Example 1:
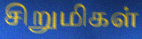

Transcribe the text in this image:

சிறுமிகள்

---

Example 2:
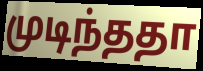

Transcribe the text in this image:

முடிந்ததா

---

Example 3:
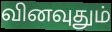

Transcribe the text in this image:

வினவுதும்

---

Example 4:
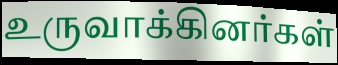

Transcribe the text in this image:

உருவாக்கினர்கள்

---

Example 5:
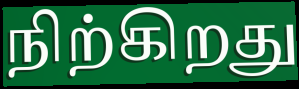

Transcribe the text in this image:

நிற்கிறது